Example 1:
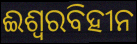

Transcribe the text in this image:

ଈଶ୍ୱରବିହୀନ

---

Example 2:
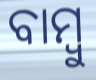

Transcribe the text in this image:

ବାମ୍ବୁ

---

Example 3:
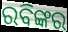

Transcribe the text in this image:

ରବିଙ୍କର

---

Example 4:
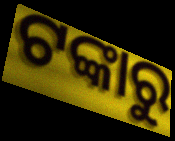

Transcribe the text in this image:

ଟଙ୍କାରୁ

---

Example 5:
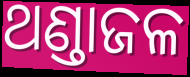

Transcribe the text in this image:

ଥଣ୍ଡାଜଳ